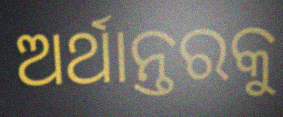
ଅର୍ଥାନ୍ତରକୁ